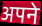
अपने